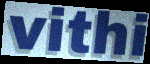
vithi